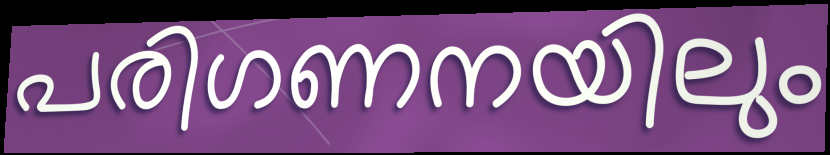
പരിഗണനയിലും